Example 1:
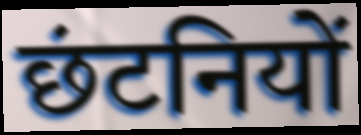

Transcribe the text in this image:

छंटनियों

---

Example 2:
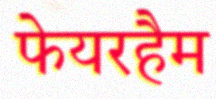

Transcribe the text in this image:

फेयरहैम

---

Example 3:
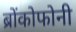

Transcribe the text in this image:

ब्रोंकोफोनी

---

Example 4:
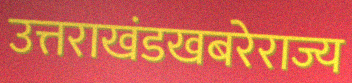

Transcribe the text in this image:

उत्तराखंडखबरेराज्य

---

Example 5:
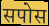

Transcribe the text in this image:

सपोस